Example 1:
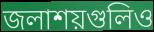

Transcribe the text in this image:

জলাশয়গুলিও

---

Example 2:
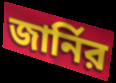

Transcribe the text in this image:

জার্নির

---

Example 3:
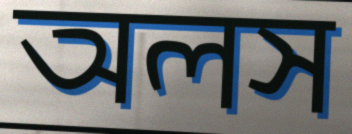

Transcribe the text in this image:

অলস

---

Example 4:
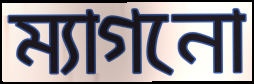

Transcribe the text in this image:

ম্যাগনো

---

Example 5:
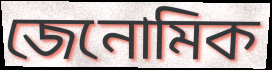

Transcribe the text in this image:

জেনোমিক